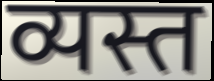
व्यस्त